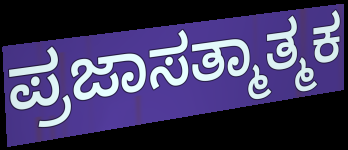
ಪ್ರಜಾಸತ್ಮಾತ್ಮಕ